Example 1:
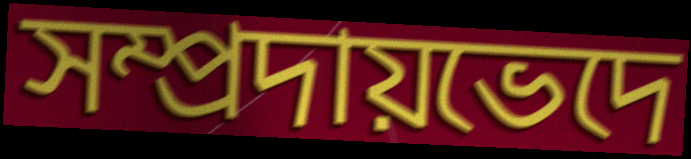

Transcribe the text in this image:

সম্প্রদায়ভেদে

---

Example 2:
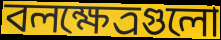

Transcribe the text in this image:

বলক্ষেত্রগুলো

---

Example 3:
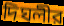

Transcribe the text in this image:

দিঘলীর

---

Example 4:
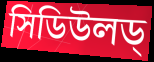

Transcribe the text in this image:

সিডিউলড্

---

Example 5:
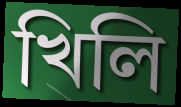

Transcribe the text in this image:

খিলি